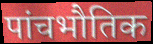
पांचभौतिक